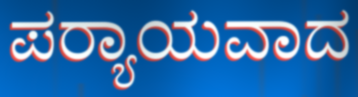
ಪರ‍್ಯಾಯವಾದ